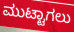
ಮುಟ್ಟಾಗಲು